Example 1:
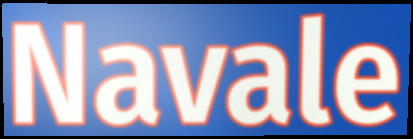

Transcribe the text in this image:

Navale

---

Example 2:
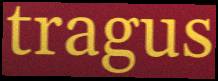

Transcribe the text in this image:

tragus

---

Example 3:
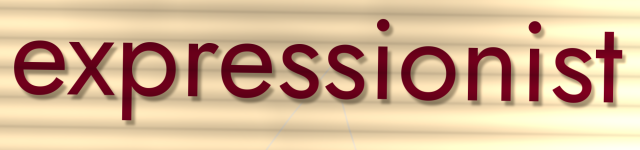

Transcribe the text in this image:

expressionist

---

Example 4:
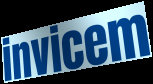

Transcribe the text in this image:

invicem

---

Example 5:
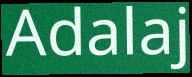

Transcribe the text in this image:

Adalaj